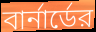
বার্নার্ডের